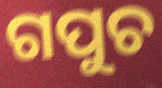
ଗପୁଚ